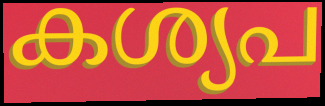
കശ്യപ